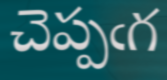
చెప్పఁగ